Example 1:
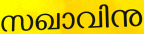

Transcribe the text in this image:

സഖാവിനു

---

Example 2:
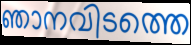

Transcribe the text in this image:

ഞാനവിടത്തെ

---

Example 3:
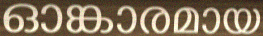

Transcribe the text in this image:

ഓങ്കാരമായ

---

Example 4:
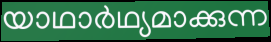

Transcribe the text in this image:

യാഥാർഥ്യമാക്കുന്ന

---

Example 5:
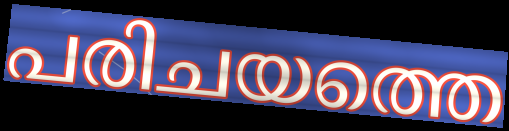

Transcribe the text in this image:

പരിചയത്തെ